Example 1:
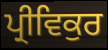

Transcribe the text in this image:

ਪ੍ਰੀਵਿਕੁਰ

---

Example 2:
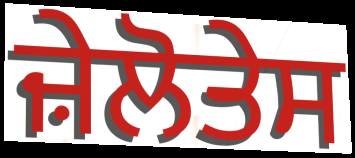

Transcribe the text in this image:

ਜ਼ੇਲੋਤੇਸ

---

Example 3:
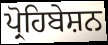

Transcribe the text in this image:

ਪ੍ਰੋਹਿਬੇਸ਼ਨ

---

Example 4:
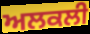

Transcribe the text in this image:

ਅਲਕਲੀ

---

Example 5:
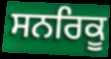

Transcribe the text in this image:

ਸਨਰਿਕੂ